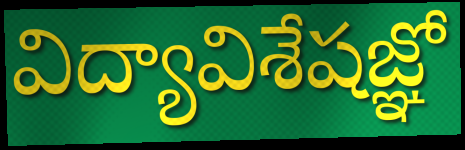
విద్యావిశేషజ్ఞో